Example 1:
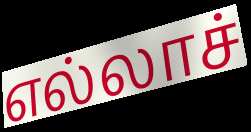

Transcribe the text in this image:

எல்லாச்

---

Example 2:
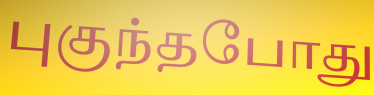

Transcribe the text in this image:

புகுந்தபோது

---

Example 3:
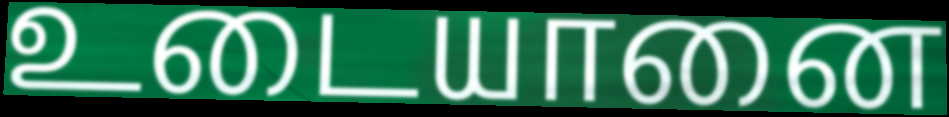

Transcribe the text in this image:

உடையானை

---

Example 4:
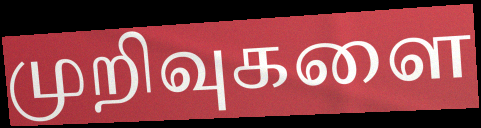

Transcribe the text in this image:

முறிவுகளை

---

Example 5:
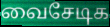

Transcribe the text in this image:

வைசேடிக